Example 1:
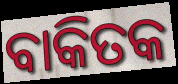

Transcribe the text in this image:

ବାକିତକ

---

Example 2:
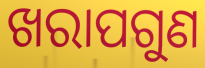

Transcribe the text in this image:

ଖରାପଗୁଣ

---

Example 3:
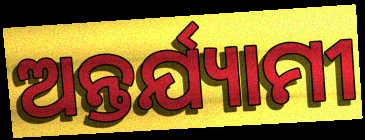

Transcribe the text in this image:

ଅନ୍ତର୍ଯ୍ୟାମୀ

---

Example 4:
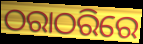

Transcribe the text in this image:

ଠରାଠରିରେ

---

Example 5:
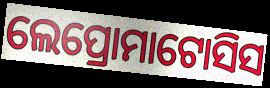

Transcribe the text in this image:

ଲେପ୍ରୋମାଟୋସିସ